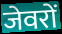
जेवरों